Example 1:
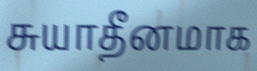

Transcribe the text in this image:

சுயாதீனமாக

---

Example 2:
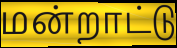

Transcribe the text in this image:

மன்றாட்டு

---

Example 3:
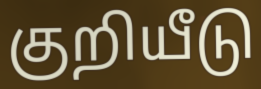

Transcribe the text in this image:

குறியீடு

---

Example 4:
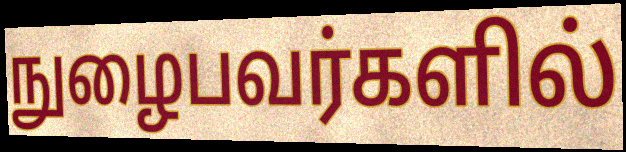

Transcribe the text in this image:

நுழைபவர்களில்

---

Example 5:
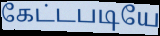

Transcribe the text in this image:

கேட்டபடியே